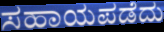
ಸಹಾಯಪಡೆದು